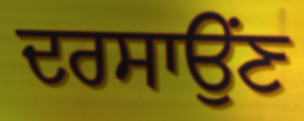
ਦਰਸਾਉਂਣ